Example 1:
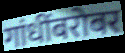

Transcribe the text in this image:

गांधींबरोबर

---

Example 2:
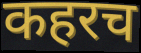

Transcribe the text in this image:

कहरच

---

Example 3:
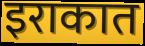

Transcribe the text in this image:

इराकात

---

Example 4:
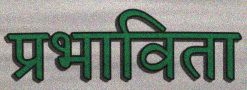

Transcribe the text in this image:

प्रभाविता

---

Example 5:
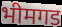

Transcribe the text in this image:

भीमगड